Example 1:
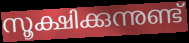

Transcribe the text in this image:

സൂക്ഷിക്കുന്നുണ്ട്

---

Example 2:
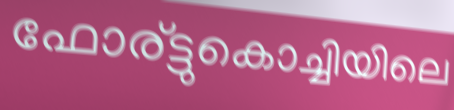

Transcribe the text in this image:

ഫോര്ട്ടുകൊച്ചിയിലെ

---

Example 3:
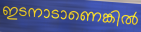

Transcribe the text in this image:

ഇടനാടാണെങ്കിൽ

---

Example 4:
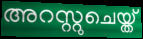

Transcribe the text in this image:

അറസ്റ്റുചെയ്ത്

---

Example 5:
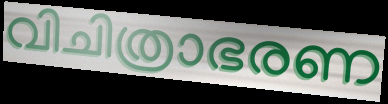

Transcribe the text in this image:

വിചിത്രാഭരണ